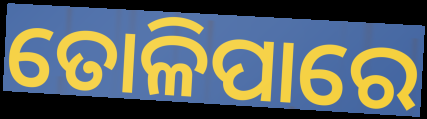
ତୋଳିପାରେ